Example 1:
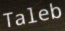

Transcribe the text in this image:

Taleb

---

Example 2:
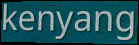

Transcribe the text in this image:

kenyang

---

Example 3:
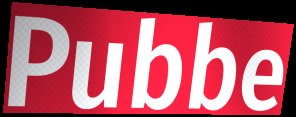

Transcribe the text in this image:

Pubbe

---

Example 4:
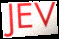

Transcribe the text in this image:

JEV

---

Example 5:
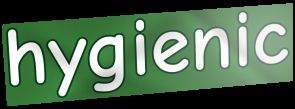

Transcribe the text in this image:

hygienic